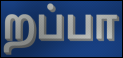
றப்பா